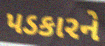
પડકારને